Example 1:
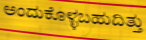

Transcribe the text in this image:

ಅಂದುಕೊಳ್ಳಬಹುದಿತ್ತು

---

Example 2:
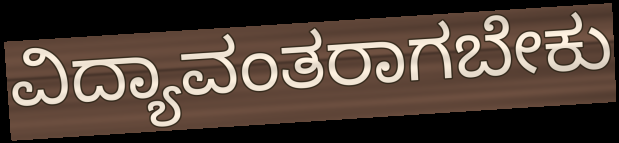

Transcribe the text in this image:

ವಿದ್ಯಾವಂತರಾಗಬೇಕು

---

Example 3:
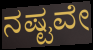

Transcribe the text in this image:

ನಷ್ಟವೇ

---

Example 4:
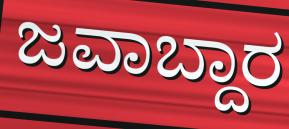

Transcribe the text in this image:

ಜವಾಬ್ದಾರ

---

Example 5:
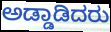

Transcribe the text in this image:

ಅಡ್ಡಾಡಿದರು